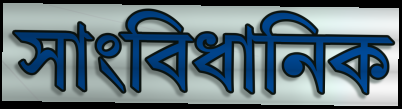
সাংবিধানিক